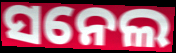
ସନେଲ